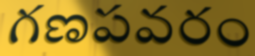
గణపవరం